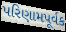
પરિણામપૂર્વક